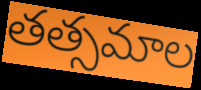
తత్సమాల